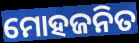
ମୋହଜନିତ